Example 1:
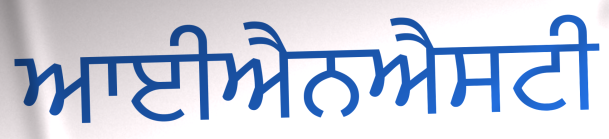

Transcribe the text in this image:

ਆਈਐਨਐਸਟੀ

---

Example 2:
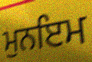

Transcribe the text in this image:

ਮੁਨਇਮ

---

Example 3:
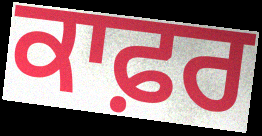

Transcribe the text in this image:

ਕਾਫ਼ਰ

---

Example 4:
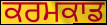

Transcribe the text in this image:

ਕਰਮਕਾਡ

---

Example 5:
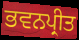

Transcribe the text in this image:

ਭਵਨਪ੍ਰੀਤ